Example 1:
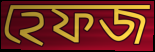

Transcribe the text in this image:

হেফজ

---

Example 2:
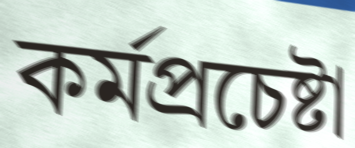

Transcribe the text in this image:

কর্মপ্রচেষ্টা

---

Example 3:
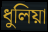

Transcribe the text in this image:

ধুলিয়া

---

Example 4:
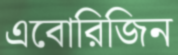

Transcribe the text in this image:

এবোরিজিন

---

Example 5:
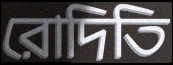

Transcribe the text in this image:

রোদিতি